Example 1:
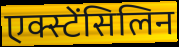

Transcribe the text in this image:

एक्स्टेंसिलिन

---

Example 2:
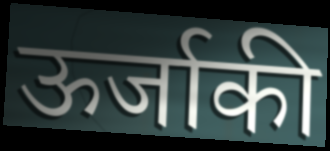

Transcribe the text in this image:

ऊर्जाकी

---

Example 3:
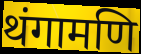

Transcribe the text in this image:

थंगामणि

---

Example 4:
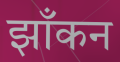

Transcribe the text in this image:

झाँकन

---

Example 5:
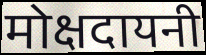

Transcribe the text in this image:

मोक्षदायनी